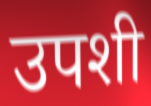
उपशी